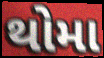
થોમા